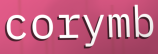
corymb